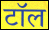
टॉल